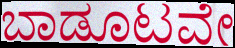
ಬಾಡೂಟವೇ